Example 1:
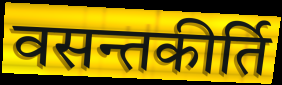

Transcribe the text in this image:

वसन्तकीर्ति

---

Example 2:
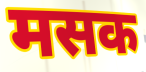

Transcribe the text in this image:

मसक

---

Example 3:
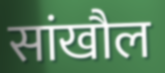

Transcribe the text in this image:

सांखौल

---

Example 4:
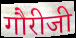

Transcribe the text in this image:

गौरीजी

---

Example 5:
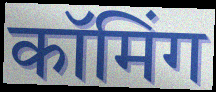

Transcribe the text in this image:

कॉमिंग